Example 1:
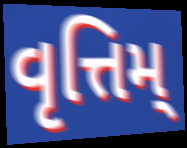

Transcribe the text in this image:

વૃત્તિમ્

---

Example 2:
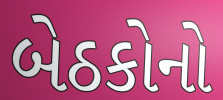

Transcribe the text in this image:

બેઠકોનો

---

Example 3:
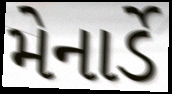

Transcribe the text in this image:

મેનાર્ડે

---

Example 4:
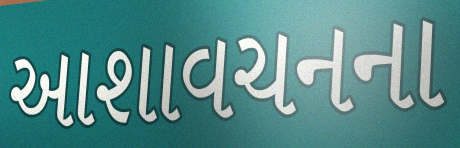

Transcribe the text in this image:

આશાવચનના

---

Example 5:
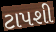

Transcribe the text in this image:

ટાપશી